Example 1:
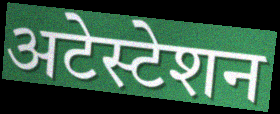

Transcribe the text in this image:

अटेस्टेशन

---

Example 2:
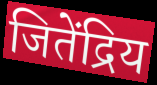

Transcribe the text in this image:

जितेंद्रिय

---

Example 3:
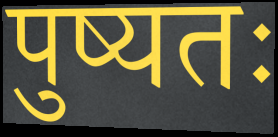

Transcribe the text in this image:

पुष्यतः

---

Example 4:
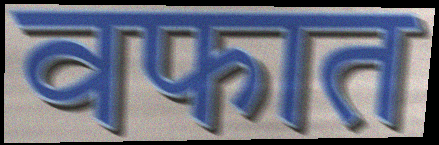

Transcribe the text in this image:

वफात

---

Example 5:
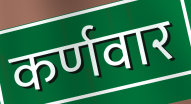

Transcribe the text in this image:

कर्णवार